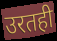
उरतही